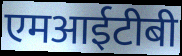
एमआईटीबी